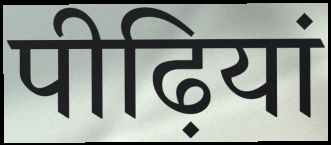
पीढ़ियां